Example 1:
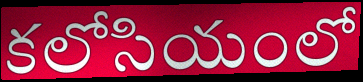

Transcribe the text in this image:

కలోసియంలో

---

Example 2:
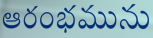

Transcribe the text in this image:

ఆరంభమును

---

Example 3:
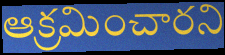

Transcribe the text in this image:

ఆక్రమించారని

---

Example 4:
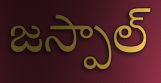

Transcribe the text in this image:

జస్పాల్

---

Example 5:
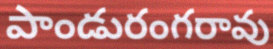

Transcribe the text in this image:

పాండురంగరావు